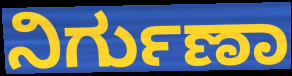
ನಿರ್ಗುಣಾ